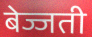
बेज्जती